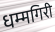
धम्मगिरी